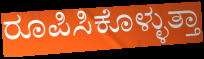
ರೂಪಿಸಿಕೊಳ್ಳುತ್ತಾ